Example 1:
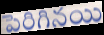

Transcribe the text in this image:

పెరిగినయి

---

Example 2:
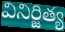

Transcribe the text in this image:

వినిర్జిత్య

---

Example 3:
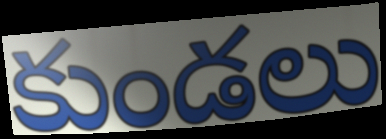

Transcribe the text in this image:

కుండలు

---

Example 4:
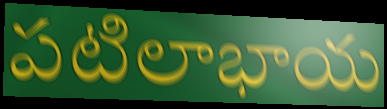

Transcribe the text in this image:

పటిలాభాయ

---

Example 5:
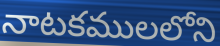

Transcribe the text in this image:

నాటకములలోని